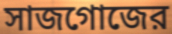
সাজগোজের